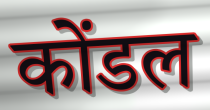
कोंडल